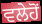
ਵਲੇਹੋਂ